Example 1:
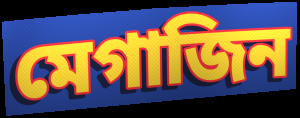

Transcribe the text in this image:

মেগাজিন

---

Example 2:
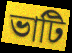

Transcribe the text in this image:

ভাটি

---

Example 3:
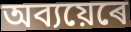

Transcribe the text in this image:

অব্যয়েৰে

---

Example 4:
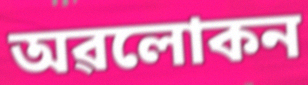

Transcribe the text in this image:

অৱলোকন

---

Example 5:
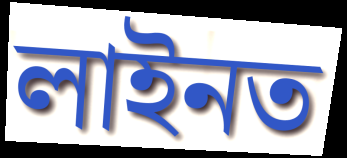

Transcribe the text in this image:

লাইনত